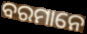
ବରମାନେ